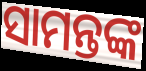
ସାମନ୍ତଙ୍କ